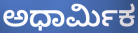
ಅಧಾರ್ಮಿಕ